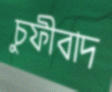
চুফীবাদ